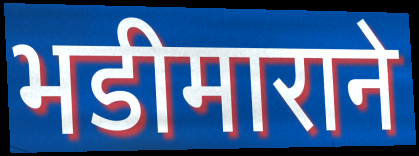
भडीमाराने